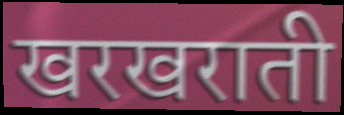
खरखराती